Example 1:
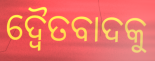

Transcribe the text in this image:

ଦ୍ୱୈତବାଦକୁ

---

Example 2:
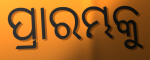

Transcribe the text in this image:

ପ୍ରାରମ୍ଭକୁ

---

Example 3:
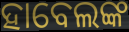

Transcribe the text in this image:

ହାବେଲଙ୍କ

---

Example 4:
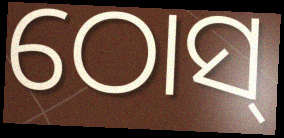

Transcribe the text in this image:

ଠୋସ୍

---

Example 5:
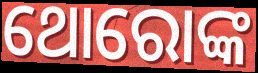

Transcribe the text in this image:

ଥୋରୋଙ୍କ